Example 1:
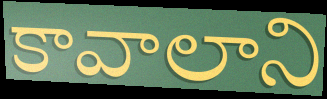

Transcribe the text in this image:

కావాలాని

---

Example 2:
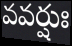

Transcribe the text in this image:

వవర్షుః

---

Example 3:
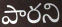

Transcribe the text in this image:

పారని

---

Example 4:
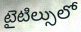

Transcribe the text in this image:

టైటిల్సులో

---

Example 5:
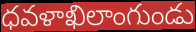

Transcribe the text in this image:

ధవళాఖిలాంగుండు